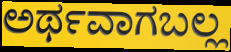
ಅರ್ಥವಾಗಬಲ್ಲ